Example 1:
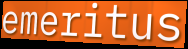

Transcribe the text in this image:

emeritus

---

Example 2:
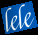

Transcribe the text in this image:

lele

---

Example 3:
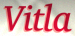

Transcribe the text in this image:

Vitla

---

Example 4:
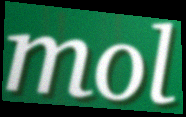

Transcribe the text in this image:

mol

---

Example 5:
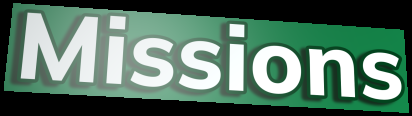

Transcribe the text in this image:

Missions